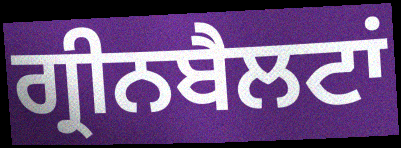
ਗ੍ਰੀਨਬੈਲਟਾਂ